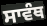
ਸਾਵੰਥ